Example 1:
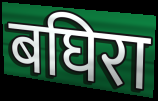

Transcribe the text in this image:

बघिरा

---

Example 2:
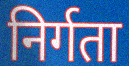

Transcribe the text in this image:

निर्गता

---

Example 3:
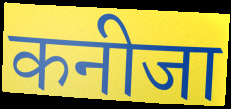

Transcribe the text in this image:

कनीजा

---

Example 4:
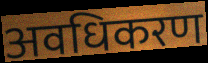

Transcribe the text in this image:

अवधिकरण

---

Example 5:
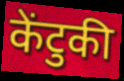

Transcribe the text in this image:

केंटुकी